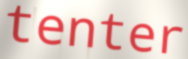
tenter